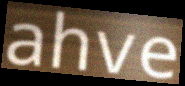
ahve